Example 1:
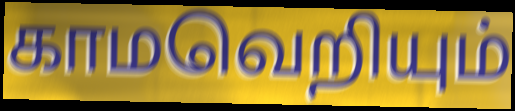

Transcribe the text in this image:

காமவெறியும்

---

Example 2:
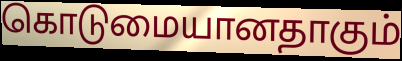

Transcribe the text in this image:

கொடுமையானதாகும்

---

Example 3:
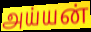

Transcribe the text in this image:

அய்யன்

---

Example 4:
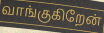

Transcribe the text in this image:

வாங்குகிறேன்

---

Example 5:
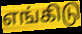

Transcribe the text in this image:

எங்கிடு